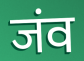
जंव